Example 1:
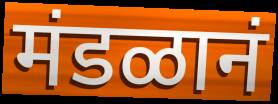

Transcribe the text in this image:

मंडळानं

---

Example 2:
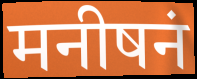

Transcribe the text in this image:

मनीषनं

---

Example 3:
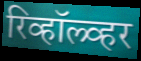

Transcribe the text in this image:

रिव्हॉल्व्हर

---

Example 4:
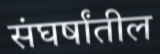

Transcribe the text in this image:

संघर्षांतील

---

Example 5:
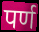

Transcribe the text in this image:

पर्ण